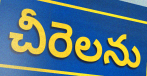
చీరెలను